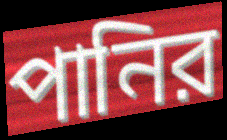
পানির